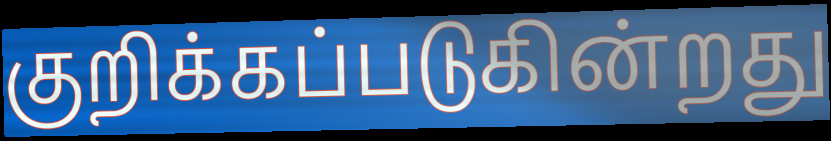
குறிக்கப்படுகின்றது